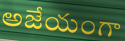
అజేయంగా